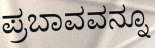
ಪ್ರಬಾವವನ್ನೂ